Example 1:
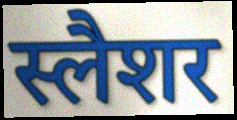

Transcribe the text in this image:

स्लैशर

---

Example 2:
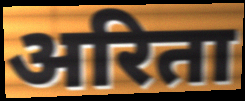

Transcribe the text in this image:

अरिता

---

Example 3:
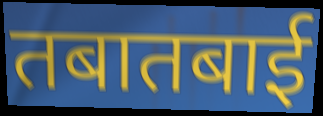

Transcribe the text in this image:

तबातबाई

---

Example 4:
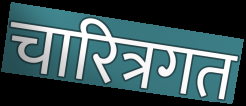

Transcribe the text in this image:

चारित्रगत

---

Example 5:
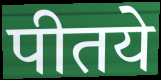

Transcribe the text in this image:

पीतये